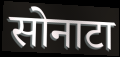
सोनाटा